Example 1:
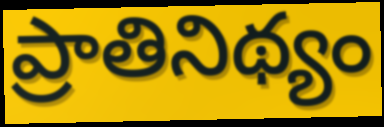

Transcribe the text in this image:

ప్రాతినిథ్యం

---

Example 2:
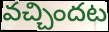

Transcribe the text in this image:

వచ్చిందట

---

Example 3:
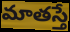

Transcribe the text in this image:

మాతస్తే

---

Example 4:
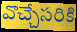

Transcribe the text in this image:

వొచ్చేసరికి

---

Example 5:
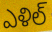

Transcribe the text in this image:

ఎళిల్